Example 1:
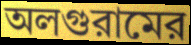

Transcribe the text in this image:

অলগুরামের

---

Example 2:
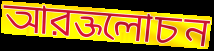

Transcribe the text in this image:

আরক্তলোচন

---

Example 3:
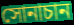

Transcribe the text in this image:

সোনাচান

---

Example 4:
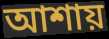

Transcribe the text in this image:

আশায়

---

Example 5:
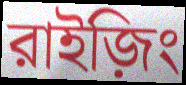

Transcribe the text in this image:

রাইজ়িং